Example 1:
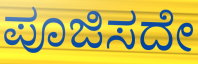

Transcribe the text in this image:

ಪೂಜಿಸದೇ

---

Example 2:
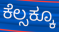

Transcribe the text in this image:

ಕೆಲ್ಸಕ್ಕೂ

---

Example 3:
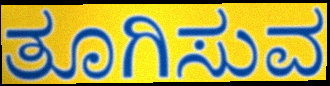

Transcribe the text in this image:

ತೂಗಿಸುವ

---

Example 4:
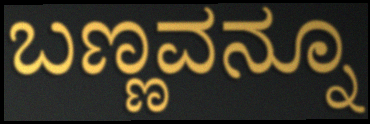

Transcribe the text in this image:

ಬಣ್ಣವನ್ನೂ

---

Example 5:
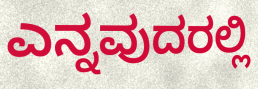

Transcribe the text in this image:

ಎನ್ನವುದರಲ್ಲಿ